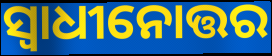
ସ୍ୱାଧୀନୋତ୍ତର